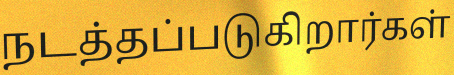
நடத்தப்படுகிறார்கள்